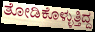
ತೋಡಿಕೊಳ್ಳುತ್ತಿದ್ದ